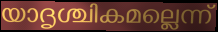
യാദൃശ്ചികമല്ലെന്ന്